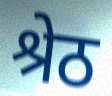
श्रेठ